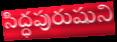
సిద్ధపురుషుని